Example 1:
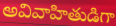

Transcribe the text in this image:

అవివాహితుడిగా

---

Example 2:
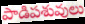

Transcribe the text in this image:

పాడిపశువులు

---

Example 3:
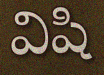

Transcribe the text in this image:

విషి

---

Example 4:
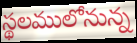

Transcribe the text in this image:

స్థలములోనున్న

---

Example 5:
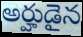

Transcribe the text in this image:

అర్హుడైన